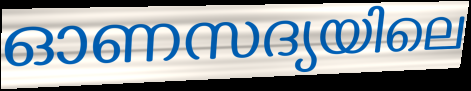
ഓണസദ്യയിലെ